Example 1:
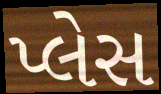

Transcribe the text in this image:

પ્લેસ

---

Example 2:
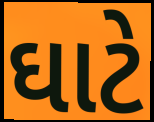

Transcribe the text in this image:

ઘાટે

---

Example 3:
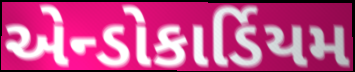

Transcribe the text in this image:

એન્ડોકાર્ડિયમ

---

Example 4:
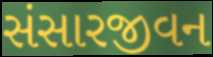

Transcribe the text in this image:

સંસારજીવન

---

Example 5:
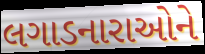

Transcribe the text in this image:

લગાડનારાઓને